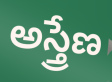
అస్త్రేణ